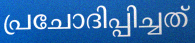
പ്രചോദിപ്പിച്ചത്